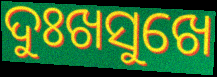
ଦୁଃଖସୁଖେ